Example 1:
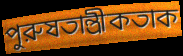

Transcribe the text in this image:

পুৰুষতান্ত্ৰীকতাক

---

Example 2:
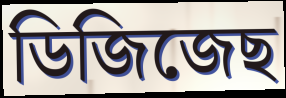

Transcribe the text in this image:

ডিজিজেছ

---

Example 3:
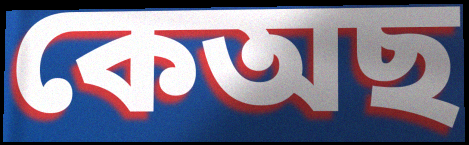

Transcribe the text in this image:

কেঅছ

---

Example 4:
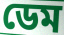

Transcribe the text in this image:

ডেম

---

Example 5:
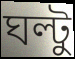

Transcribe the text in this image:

ঘল্টু